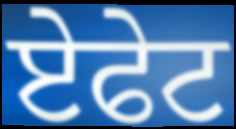
ਏਫੇਟ